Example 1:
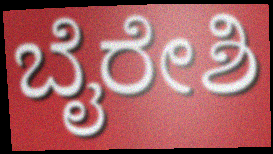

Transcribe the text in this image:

ಬೈರೇಶಿ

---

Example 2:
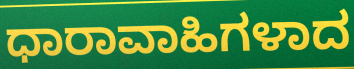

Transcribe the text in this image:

ಧಾರಾವಾಹಿಗಳಾದ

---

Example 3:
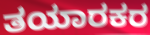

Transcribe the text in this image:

ತಯಾರಕರ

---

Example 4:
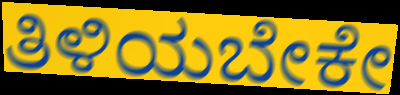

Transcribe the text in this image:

ತಿಳಿಯಬೇಕೇ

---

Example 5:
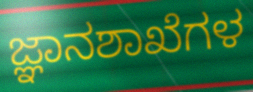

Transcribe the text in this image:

ಜ್ಞಾನಶಾಖೆಗಳ